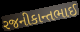
રજનીકાન્તભાઈ